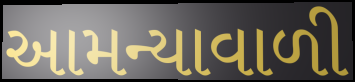
આમન્યાવાળી